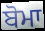
ਬੋਮਾ